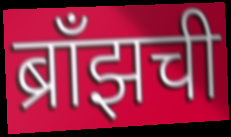
ब्राँझची